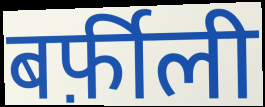
बर्फ़ीली